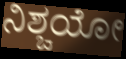
ನಿಶ್ಚಯೋ